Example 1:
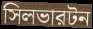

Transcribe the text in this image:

সিলভারটন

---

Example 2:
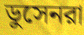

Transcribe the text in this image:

ডুসেনরা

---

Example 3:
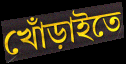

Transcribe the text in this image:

খোঁড়াইতে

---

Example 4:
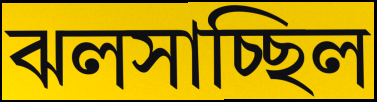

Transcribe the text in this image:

ঝলসাচ্ছিল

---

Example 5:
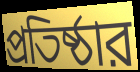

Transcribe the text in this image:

প্রতিষ্ঠার